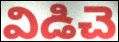
విడిచె